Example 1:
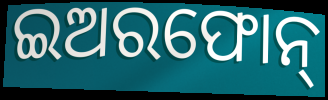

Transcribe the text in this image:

ଇଅରଫୋନ୍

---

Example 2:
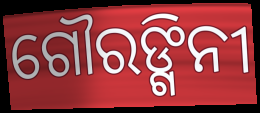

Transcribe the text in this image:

ଗୌରଙ୍ଗିନୀ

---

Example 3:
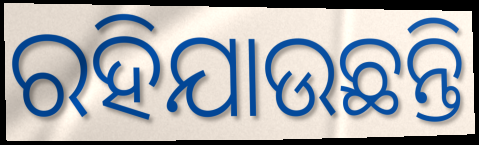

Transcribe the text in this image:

ରହିଯାଉଛନ୍ତି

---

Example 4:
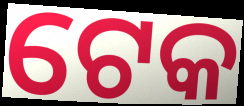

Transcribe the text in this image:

ଟେକ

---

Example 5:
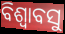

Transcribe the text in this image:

ବିଶ୍ୱାବସୁ